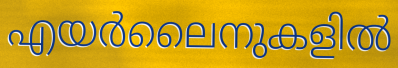
എയർലൈനുകളിൽ